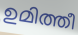
ഉമിത്തീ